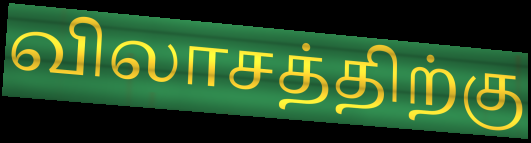
விலாசத்திற்கு